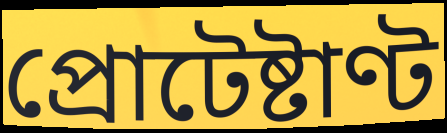
প্রোটেষ্টাণ্ট